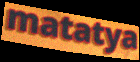
matatya